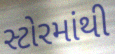
સ્ટોરમાંથી